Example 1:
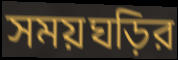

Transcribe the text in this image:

সময়ঘড়ির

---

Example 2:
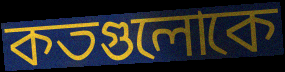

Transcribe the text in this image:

কতগুলোকে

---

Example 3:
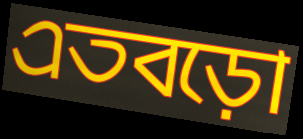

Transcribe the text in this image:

এতবড়ো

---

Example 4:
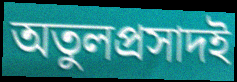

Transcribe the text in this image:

অতুলপ্রসাদই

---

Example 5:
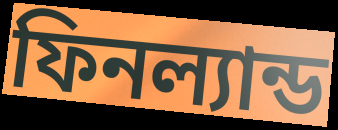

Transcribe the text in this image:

ফিনল্যান্ড